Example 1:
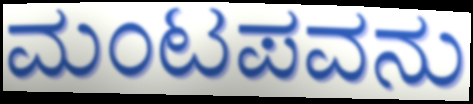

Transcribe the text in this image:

ಮಂಟಪವನು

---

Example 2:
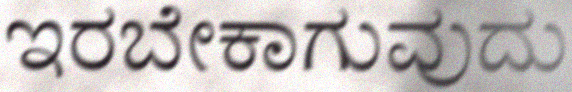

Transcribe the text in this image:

ಇರಬೇಕಾಗುವುದು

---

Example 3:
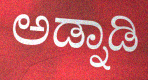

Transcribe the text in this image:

ಅಡ್ನಾಡಿ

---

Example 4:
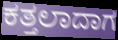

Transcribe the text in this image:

ಕತ್ತಲಾದಾಗ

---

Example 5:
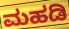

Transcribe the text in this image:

ಮಹಡಿ